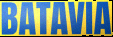
BATAVIA